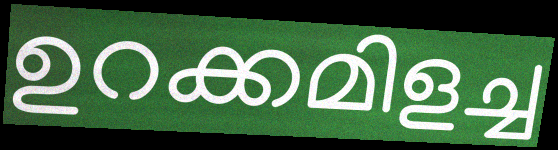
ഉറക്കമിളച്ച